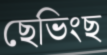
ছেভিংছ